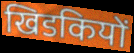
खिडकियों